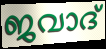
ജവാദ്